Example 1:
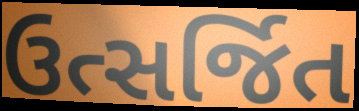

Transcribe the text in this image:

ઉત્સર્જિત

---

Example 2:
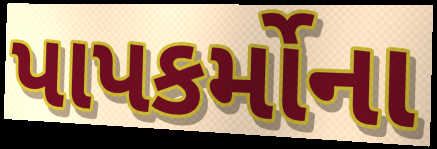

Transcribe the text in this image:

પાપકર્મોના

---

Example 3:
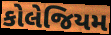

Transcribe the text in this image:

કોલેજિયમ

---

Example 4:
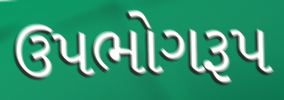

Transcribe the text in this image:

ઉપભોગરૂપ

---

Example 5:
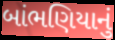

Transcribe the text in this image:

બાંભણિયાનું